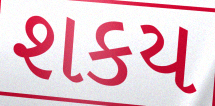
શકય